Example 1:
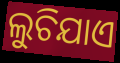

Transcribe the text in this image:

ଲୁଚିଯାଏ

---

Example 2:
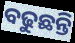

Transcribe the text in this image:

ବଢୁଛନ୍ତି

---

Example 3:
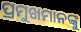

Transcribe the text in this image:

ପ୍ରମୁଖମାନଙ୍କୁ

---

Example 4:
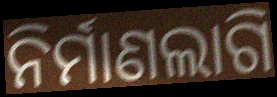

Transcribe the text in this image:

ନିର୍ମାଣଲାଗି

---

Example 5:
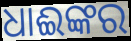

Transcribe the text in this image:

ଧାଈଙ୍କର